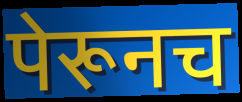
पेरूनच